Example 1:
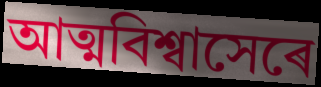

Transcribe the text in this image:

আত্মবিশ্বাসেৰে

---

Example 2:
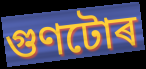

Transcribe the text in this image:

গুণটোৰ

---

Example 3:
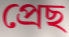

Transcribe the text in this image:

প্ৰেছ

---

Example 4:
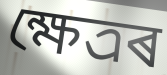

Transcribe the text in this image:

ক্ষেত্ৰৰ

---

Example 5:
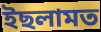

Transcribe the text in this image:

ইছলামত